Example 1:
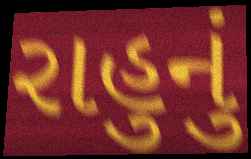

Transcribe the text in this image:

રાહુનું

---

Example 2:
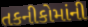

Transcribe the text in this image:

તકનીકોમાંની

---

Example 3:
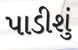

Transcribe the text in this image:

પાડીશું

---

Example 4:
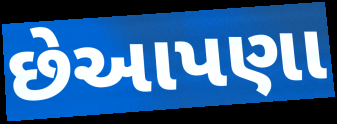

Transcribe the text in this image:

છેઆપણા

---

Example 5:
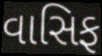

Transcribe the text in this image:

વાસિફ